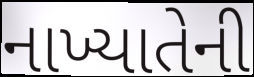
નાખ્યાતેની